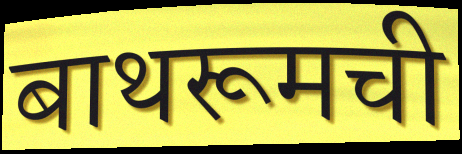
बाथरूमची